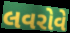
લવરોવે